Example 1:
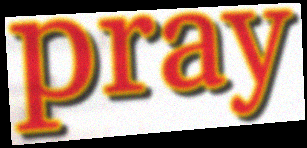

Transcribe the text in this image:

pray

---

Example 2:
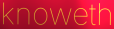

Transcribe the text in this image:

knoweth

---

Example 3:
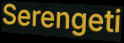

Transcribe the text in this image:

Serengeti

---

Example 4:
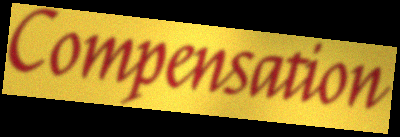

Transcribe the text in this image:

Compensation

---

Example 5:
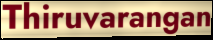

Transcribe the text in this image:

Thiruvarangan